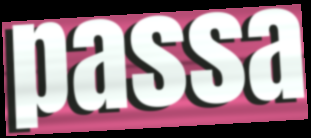
passa